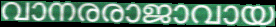
വാനരരാജാവായ